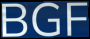
BGF